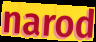
narod